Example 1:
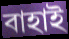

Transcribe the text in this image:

বাহাই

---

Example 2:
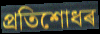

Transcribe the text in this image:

প্ৰতিশোধৰ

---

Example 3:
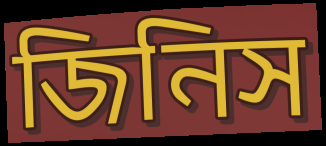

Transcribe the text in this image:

জিনিস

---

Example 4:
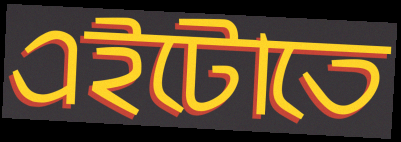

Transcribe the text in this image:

এইটোতে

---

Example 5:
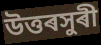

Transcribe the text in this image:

উত্তৰসুৰী